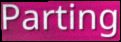
Parting